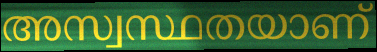
അസ്വസ്ഥതയാണ്